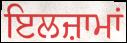
ਇਲਜ਼ਾਮਾਂ